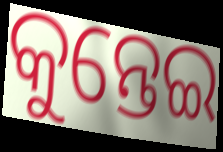
କୁନ୍ତେଇ